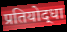
प्रतियोद्धा